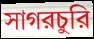
সাগরচুরি